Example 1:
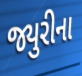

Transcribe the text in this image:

જ્યુરીના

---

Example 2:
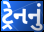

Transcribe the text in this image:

ટ્રેનનું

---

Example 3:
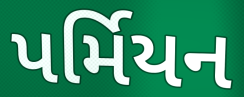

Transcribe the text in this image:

પર્મિયન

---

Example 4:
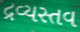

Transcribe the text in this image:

દ્રવ્યસ્તવ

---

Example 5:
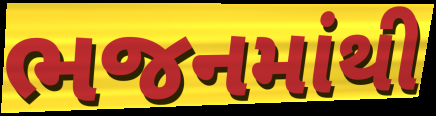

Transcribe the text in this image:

ભજનમાંથી